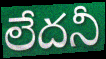
లేదనీ